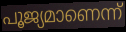
പൂജ്യമാണെന്ന്